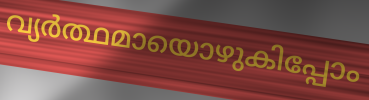
വ്യർത്ഥമായൊഴുകിപ്പോം